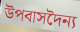
উপবাসদৈন্য